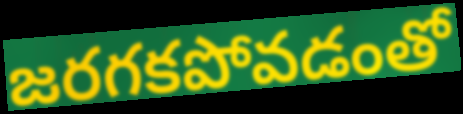
జరగకపోవడంతో